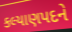
કલ્યાણપદને